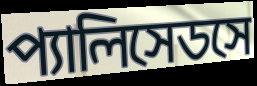
প্যালিসেডসে